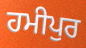
ਹਮੀਪੁਰ